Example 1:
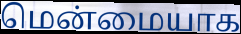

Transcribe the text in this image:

மென்மையாக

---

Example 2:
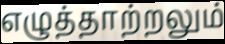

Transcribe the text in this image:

எழுத்தாற்றலும்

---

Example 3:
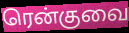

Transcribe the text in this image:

ரென்குவை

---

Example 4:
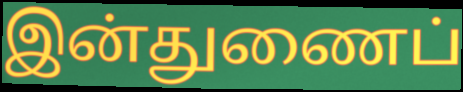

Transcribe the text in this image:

இன்துணைப்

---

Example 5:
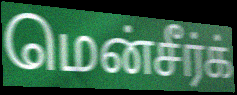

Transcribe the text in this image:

மென்சீர்க்